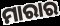
ମାରାର